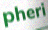
pheri